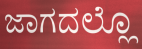
ಜಾಗದಲ್ಲೊ